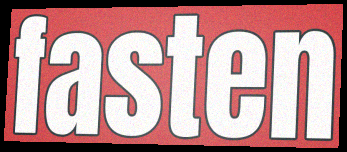
fasten